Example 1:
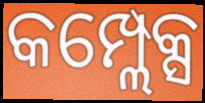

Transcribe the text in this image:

କମ୍ପ୍ଲେକ୍ସ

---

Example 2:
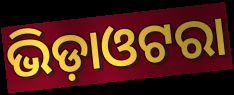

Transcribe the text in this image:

ଭିଡ଼ାଓଟରା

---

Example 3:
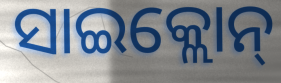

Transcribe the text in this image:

ସାଇକ୍ଲୋନ୍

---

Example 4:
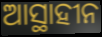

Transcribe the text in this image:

ଆସ୍ଥାହୀନ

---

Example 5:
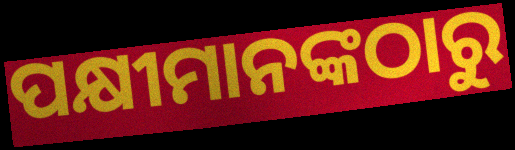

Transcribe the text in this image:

ପକ୍ଷୀମାନଙ୍କଠାରୁ